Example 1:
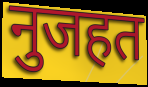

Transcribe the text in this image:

नुजहत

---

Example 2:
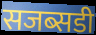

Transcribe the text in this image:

सजब्सडी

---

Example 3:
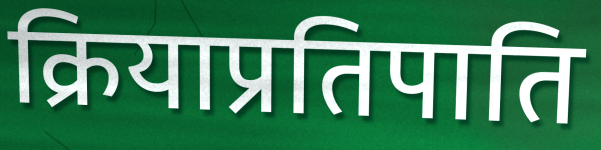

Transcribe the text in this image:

क्रियाप्रतिपाति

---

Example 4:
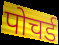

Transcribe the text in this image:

पोचर्ड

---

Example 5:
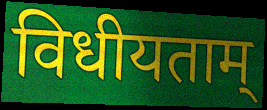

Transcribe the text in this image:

विधीयताम्